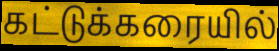
கட்டுக்கரையில்